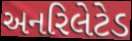
અનરિલેટેડ